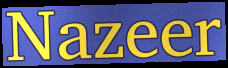
Nazeer